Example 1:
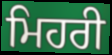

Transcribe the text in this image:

ਮਿਹਰੀ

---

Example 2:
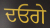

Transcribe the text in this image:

ਦਓਗੇ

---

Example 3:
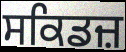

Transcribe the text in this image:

ਸਕਿਡਜ਼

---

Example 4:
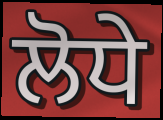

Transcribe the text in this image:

ਲੋਧੇ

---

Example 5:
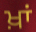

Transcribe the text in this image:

ਖ਼ਾਂ